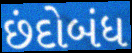
છંદોબંધ